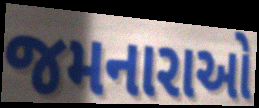
જમનારાઓ